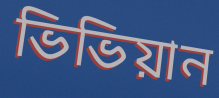
ভিভিয়ান